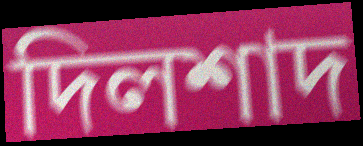
দিলশাদ